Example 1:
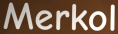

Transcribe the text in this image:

Merkol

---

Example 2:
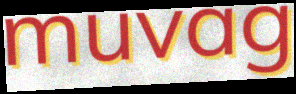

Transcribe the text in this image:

muvag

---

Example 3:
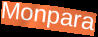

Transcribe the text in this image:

Monpara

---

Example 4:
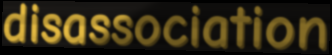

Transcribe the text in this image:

disassociation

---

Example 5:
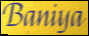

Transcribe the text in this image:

Baniya